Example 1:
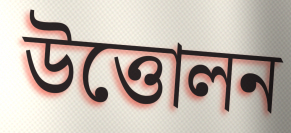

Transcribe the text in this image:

উত্তোলন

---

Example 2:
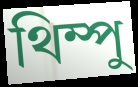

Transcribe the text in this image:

থিম্পু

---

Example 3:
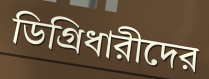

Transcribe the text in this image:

ডিগ্রিধারীদের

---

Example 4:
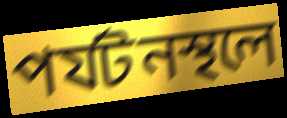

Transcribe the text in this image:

পর্যটনস্থলে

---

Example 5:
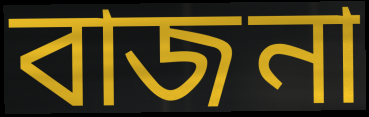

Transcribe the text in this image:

বাজনা